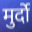
मुर्दो